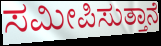
ಸಮೀಪಿಸುತ್ತಾನೆ